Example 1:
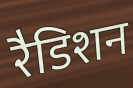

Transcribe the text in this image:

रैडिशन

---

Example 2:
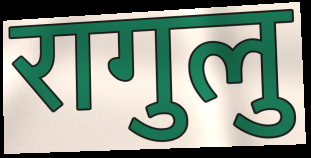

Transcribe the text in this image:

रागुलु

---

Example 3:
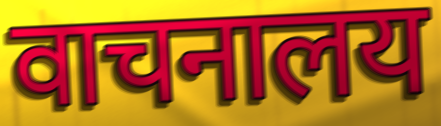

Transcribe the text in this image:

वाचनालय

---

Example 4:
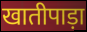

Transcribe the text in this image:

खातीपाड़ा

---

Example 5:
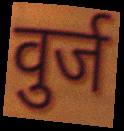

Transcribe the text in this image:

वुर्ज